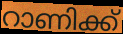
റാണിക്ക്